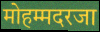
मोहम्मदरजा